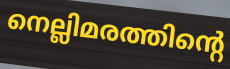
നെല്ലിമരത്തിന്റെ